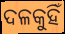
ଦଳକୁହିଁ